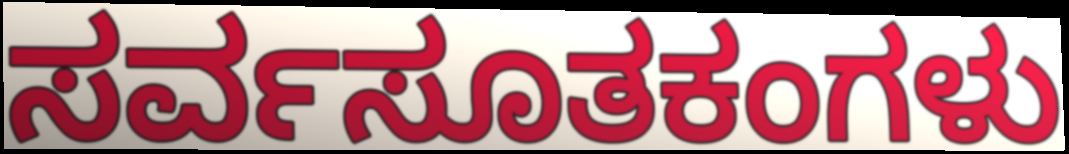
ಸರ್ವಸೂತಕಂಗಳು